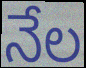
నేల